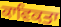
ਕਾਵਿਕਤਾ